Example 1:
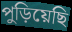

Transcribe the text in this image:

পুড়িয়েছি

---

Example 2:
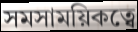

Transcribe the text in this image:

সমসাময়িকত্বে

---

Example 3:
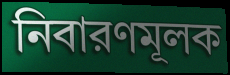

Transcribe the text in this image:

নিবারণমূলক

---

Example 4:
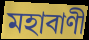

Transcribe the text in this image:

মহাবাণী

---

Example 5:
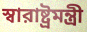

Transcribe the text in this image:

স্বারাষ্ট্রমন্ত্রী